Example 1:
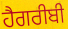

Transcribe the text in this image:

ਹੈਗਰੀਬੀ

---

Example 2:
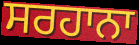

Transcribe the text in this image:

ਸਰਹਾਨਾ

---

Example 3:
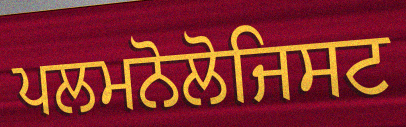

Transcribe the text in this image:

ਪਲਮਨੋਲੋਜਿਸਟ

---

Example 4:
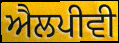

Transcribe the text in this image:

ਐਲਪੀਵੀ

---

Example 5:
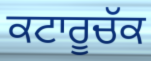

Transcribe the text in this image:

ਕਟਾਰੂਚੱਕ